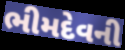
ભીમદેવની